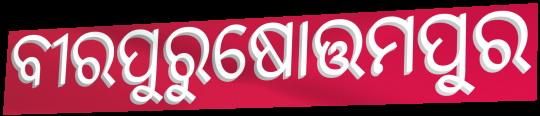
ବୀରପୁରୁଷୋତ୍ତମପୁର